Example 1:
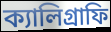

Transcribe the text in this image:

ক্যালিগ্রাফি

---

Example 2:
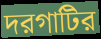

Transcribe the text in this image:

দরগাটির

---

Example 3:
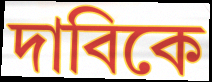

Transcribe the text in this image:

দাবিকে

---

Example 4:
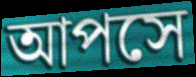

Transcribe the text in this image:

আপসে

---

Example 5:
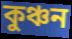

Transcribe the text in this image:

কুঞ্চন